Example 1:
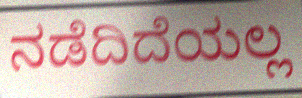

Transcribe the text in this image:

ನಡೆದಿದೆಯಲ್ಲ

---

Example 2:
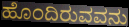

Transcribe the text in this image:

ಹೊಂದಿರುವವನು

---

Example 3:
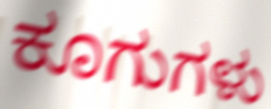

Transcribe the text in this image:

ಕೂಗುಗಳು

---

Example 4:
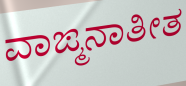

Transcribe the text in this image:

ವಾಙ್ಮನಾತೀತ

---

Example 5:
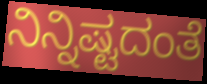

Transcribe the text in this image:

ನಿನ್ನಿಷ್ಟದಂತೆ